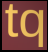
tq